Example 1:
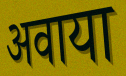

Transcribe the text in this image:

अवाया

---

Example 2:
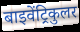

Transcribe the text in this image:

बाइवेंट्रिकुलर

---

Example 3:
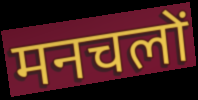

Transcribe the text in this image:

मनचलों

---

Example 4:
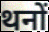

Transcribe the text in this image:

थनों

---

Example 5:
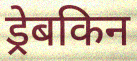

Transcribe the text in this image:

ड्रेबकिन